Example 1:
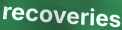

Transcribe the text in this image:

recoveries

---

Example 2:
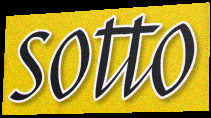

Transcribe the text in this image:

sotto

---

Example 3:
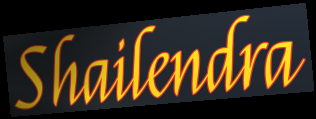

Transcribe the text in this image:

Shailendra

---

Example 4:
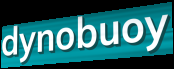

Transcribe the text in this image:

dynobuoy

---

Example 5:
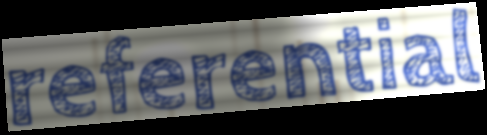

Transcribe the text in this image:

referential